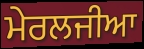
ਮੇਰਲਜੀਆ